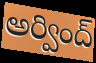
అర్వింద్